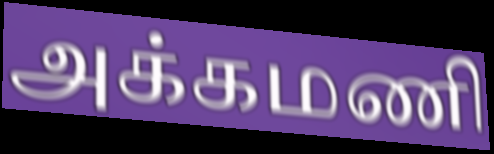
அக்கமணி